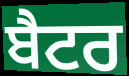
ਬੈਟਰ